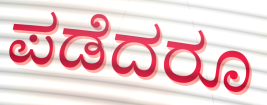
ಪಡೆದರೂ